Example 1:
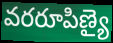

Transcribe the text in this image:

వరరూపిణ్యై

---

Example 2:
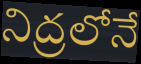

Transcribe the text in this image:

నిద్రలోనే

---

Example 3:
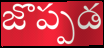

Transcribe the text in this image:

జొప్పడ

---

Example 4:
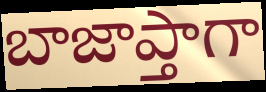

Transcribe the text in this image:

బాజాప్తాగా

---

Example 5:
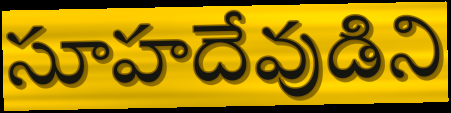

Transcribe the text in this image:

సూహదేవుడిని